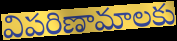
విపరిణామాలకు